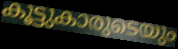
കൂട്ടുകാരുടെയും